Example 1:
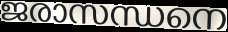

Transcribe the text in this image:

ജരാസന്ധനെ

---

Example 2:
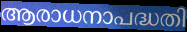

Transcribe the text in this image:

ആരാധനാപദ്ധതി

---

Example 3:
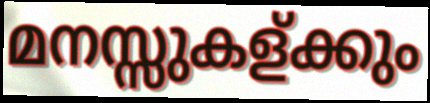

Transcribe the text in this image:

മനസ്സുകള്ക്കും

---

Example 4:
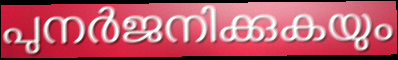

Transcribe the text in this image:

പുനർജനിക്കുകയും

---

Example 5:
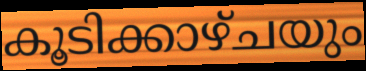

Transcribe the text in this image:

കൂടിക്കാഴ്ചയും